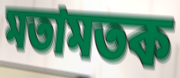
মতামতক